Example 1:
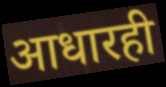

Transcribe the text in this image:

आधारही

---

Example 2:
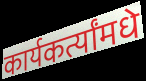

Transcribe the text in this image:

कार्यकर्त्यांमधे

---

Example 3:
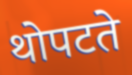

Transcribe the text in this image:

थोपटते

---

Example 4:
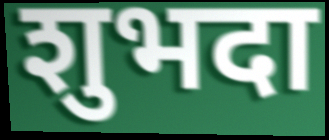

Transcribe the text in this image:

शुभदा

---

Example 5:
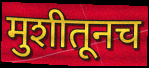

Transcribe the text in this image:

मुशीतूनच